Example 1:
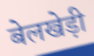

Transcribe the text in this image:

बेलखेड़ी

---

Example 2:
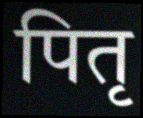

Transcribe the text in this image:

पितृ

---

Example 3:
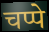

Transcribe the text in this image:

चप्पे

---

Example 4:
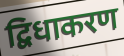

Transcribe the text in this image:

द्विधाकरण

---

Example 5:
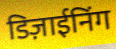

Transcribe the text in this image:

डिज़ाईनिंग